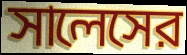
সালেসের